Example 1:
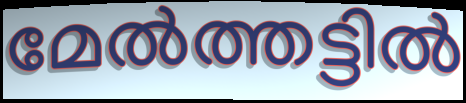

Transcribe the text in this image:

മേൽത്തട്ടിൽ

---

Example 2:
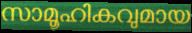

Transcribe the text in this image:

സാമൂഹികവുമായ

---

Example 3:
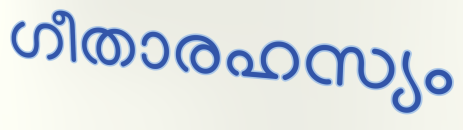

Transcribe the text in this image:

ഗീതാരഹസ്യം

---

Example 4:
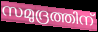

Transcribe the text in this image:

സമുദ്രത്തിന്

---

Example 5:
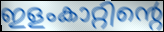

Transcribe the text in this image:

ഇളംകാറ്റിന്റെ